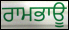
ਰਾਮਭਾਊ